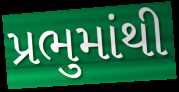
પ્રભુમાંથી